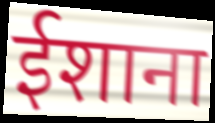
ईशाना